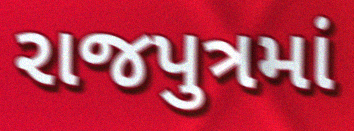
રાજપુત્રમાં